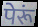
पेरूं